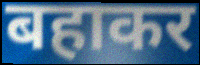
बहाकर